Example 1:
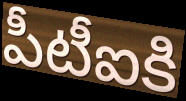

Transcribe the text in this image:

పీటీఐకి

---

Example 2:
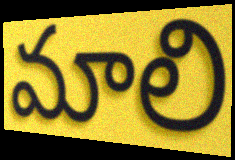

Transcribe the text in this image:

మాలి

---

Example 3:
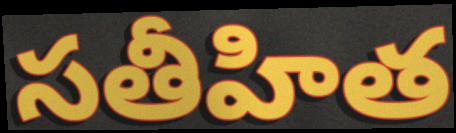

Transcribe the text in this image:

సతీహిత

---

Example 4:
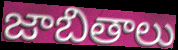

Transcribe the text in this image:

జాబితాలు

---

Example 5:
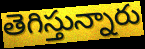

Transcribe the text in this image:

తెగిస్తున్నారు